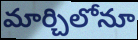
మార్చిలోనూ